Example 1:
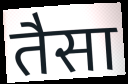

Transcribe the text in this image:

तैसा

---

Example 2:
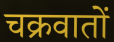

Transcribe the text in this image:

चक्रवातों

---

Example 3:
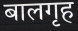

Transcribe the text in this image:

बालगृह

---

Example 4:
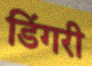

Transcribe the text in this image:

डिंगरी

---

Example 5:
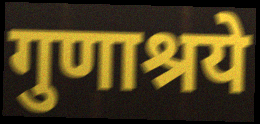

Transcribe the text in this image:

गुणाश्रये